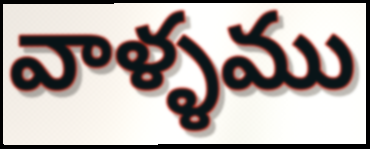
వాళ్ళము